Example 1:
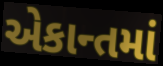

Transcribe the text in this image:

એકાન્તમાં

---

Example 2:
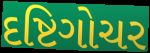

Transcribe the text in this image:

દષ્ટિગોચર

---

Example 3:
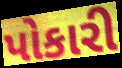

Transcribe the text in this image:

પોકારી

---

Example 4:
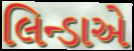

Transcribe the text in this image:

લિન્ડાએ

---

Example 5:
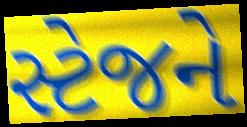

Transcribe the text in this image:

સ્ટેજને